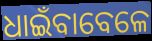
ଧାଇଁବାବେଳେ